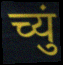
च्युं